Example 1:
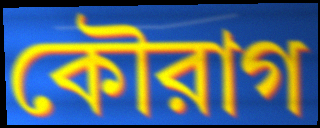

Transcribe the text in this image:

কৌরাগ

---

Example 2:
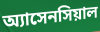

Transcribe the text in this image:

অ্যাসেনসিয়াল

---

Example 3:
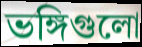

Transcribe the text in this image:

ভঙ্গিগুলো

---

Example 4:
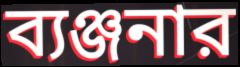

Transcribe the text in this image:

ব্যঞ্জনার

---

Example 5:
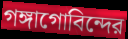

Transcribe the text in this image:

গঙ্গাগোবিন্দের